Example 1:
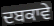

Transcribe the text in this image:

ਦਬਕਾਵੇ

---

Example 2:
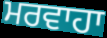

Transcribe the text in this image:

ਮਰਵਾਹਾ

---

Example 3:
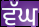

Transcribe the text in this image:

ਵੱਘ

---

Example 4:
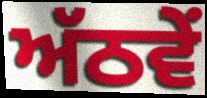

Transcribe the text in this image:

ਅੱਠਵੇਂ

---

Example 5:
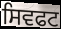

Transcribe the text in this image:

ਸਿਵਫਟ